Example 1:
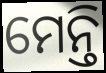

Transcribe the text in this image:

ମେନ୍ତି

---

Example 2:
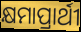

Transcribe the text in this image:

କ୍ଷମାପ୍ରାର୍ଥୀ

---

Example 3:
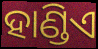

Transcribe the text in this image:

ହାଣ୍ଡିଏ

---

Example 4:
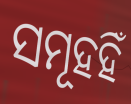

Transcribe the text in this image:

ସମୂହହିଁ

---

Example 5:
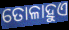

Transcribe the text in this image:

ତୋଳାହୁଏ